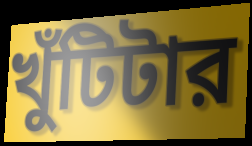
খুঁটিটার